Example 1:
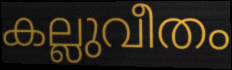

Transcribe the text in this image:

കല്ലുവീതം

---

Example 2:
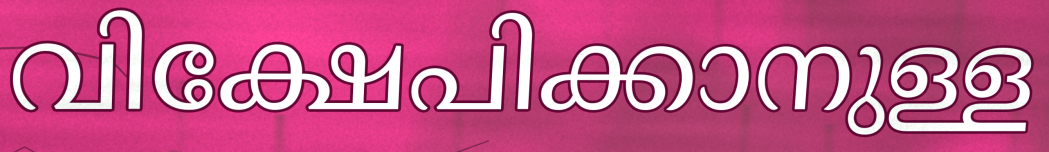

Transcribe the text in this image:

വിക്ഷേപിക്കാനുള്ള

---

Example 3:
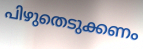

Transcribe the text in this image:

പിഴുതെടുക്കണം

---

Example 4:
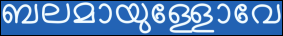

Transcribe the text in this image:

ബലമായുള്ളോവേ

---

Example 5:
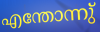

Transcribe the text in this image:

എന്തോന്നു്